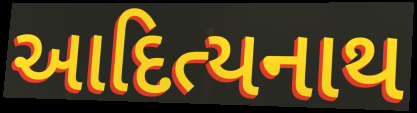
આદિત્યનાથ